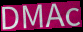
DMAc